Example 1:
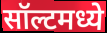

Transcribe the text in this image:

सॉल्टमध्ये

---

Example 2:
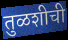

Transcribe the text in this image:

तुळशीची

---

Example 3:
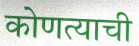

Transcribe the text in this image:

कोणत्याची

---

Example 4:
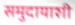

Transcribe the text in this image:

समुदायाशी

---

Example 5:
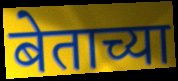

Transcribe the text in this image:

बेताच्या